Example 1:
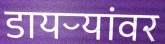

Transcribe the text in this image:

डायऱ्यांवर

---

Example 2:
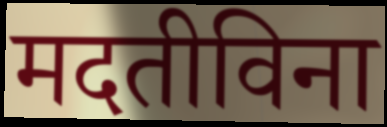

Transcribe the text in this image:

मदतीविना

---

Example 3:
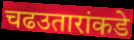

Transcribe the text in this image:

चढउतारांकडे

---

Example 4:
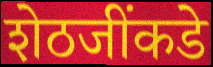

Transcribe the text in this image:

शेठजींकडे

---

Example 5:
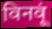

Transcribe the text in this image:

विनवूं